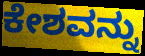
ಕೇಶವನ್ನು